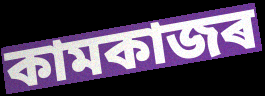
কামকাজৰ